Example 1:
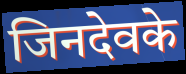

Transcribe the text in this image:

जिनदेवके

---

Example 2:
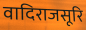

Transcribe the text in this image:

वादिराजसूरि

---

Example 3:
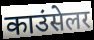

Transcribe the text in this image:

काउंसेलर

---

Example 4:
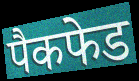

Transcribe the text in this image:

पैकफेड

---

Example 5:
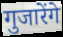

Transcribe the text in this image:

गुजारेंगे